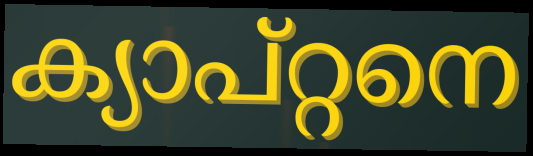
ക്യാപ്റ്റനെ